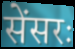
सेंसरः